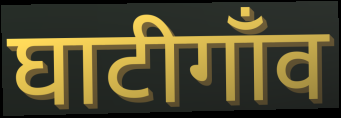
घाटीगाँव